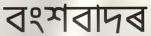
বংশবাদৰ